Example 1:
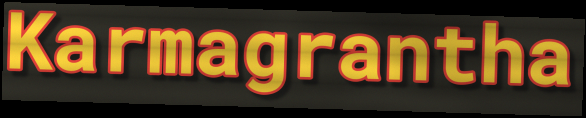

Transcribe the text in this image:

Karmagrantha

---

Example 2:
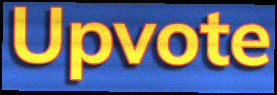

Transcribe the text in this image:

Upvote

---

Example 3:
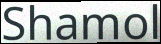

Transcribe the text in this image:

Shamol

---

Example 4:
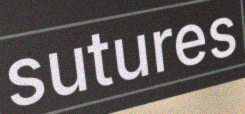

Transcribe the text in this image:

sutures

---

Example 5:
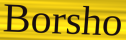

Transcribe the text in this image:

Borsho